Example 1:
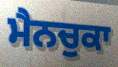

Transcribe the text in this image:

ਮੈਨਚੁਕਾ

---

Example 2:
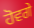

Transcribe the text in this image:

ਹੋਵਗੇ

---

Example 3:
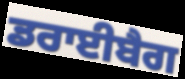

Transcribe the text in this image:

ਡਰਾਈਬੈਗ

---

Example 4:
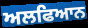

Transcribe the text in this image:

ਅਲਫਿਆਨ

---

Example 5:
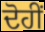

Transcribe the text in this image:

ਦੋਹੀਂ